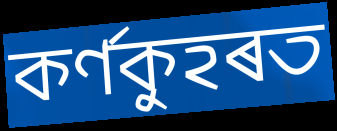
কৰ্ণকুহৰত